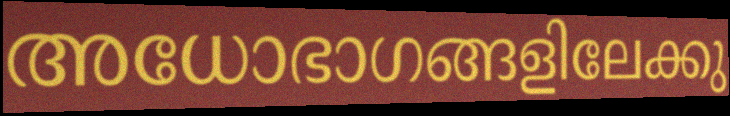
അധോഭാഗങ്ങളിലേക്കു